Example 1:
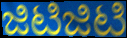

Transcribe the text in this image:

ಜಿಟಿಜಿಟಿ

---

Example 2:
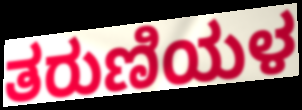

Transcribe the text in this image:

ತರುಣಿಯಳ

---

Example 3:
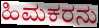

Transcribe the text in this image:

ಹಿಮಕರನು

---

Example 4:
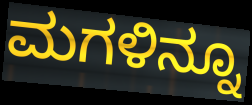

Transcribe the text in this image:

ಮಗಳಿನ್ನೂ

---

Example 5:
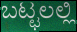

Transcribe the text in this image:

ಬಟ್ಟಲಲ್ಲಿ